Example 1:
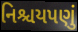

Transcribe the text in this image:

નિશ્ચયપણું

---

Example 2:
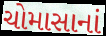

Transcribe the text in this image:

ચોમાસાનાં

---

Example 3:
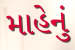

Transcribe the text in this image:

માહેનું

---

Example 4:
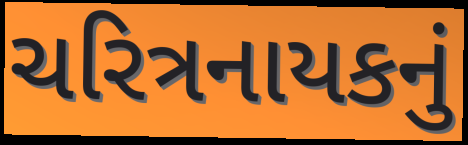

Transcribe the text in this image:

ચરિત્રનાયકનું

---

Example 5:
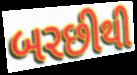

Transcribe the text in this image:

બરછીથી